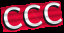
ccc